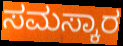
ಸಮಸ್ಕಾರ